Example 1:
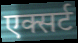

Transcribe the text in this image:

एक्सर्ट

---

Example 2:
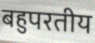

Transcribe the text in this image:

बहुपरतीय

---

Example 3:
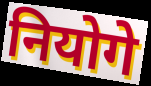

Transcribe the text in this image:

नियोगे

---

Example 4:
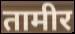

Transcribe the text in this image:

तामीर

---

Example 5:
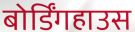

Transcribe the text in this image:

बोर्डिंगहाउस